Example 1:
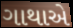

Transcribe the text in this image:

ગાથાએ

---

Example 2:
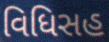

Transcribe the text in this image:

વિધિસહ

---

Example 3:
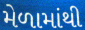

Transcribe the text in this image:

મેળામાંથી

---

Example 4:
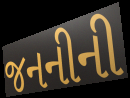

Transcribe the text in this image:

જનનીની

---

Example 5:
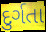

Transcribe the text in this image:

દુર્ગતા